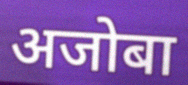
अजोबा